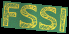
FSSI